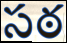
సఠ